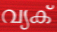
വ്യക്